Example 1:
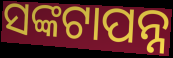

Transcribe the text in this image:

ସଙ୍କଟାପନ୍ନ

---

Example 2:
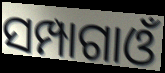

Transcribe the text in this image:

ସମ୍ପାଗାଓଁ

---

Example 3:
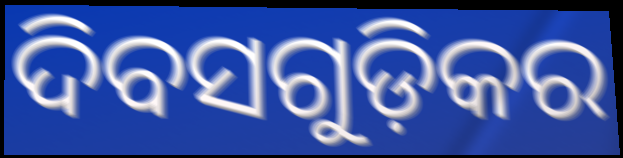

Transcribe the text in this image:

ଦିବସଗୁଡ଼ିକର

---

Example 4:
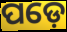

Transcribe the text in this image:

ପଡ଼େ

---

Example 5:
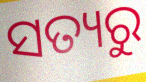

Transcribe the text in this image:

ସତ୍ୟରୁ